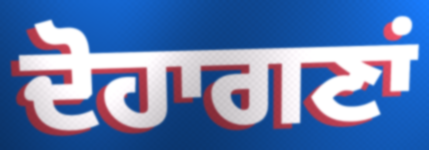
ਦੋਹਾਗਣਾਂ